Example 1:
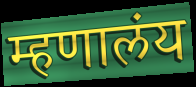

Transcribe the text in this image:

म्हणालंय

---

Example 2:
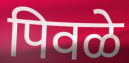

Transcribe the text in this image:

पिवळे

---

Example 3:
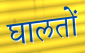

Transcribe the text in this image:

घालतों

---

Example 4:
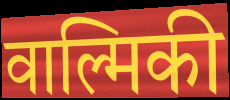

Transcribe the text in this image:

वाल्मिकी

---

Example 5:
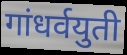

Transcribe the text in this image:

गांधर्वयुती